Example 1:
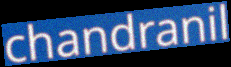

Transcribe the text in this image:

chandranil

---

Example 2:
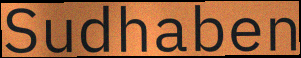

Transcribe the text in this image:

Sudhaben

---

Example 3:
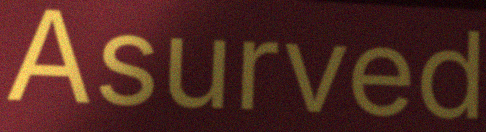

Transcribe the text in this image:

Asurved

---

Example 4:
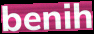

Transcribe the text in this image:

benih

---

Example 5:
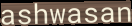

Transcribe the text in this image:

ashwasan